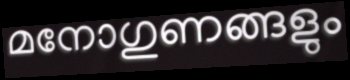
മനോഗുണങ്ങളും